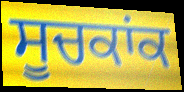
ਸੂਚਕਾਂਕ